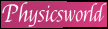
Physicsworld